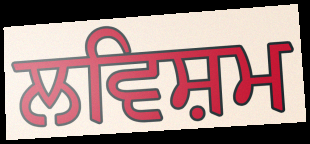
ਲਵਿਸ਼ਮ